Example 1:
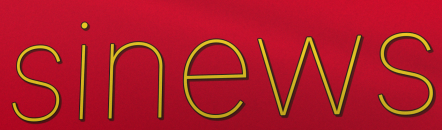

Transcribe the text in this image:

sinews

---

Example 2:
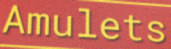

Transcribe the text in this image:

Amulets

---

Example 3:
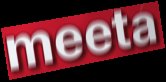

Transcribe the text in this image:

meeta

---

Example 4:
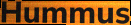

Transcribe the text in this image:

Hummus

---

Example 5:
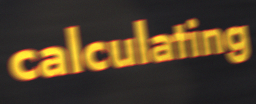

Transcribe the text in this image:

calculating